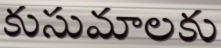
కుసుమాలకు